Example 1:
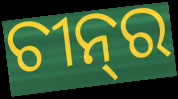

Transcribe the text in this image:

ଚୀନ୍‌ର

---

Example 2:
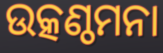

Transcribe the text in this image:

ଉତ୍କଣ୍ଠମନା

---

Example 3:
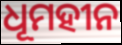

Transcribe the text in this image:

ଧୂମହୀନ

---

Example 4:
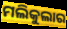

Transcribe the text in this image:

ମଲିକୁଲାର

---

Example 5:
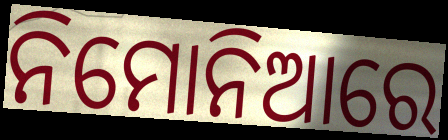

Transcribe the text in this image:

ନିମୋନିଆରେ